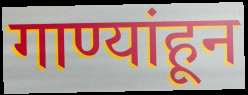
गाण्यांहून